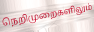
நெறிமுறைகளிலும்